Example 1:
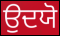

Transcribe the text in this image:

ਉਦਯੋ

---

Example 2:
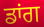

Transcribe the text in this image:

ਡਾਂਗ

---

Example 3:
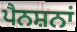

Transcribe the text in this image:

ਪੈਨਸ਼ਨਾਂ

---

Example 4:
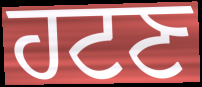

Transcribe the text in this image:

ਹਟਣ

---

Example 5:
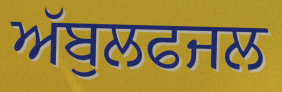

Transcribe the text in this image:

ਅੱਬੁਲਫਜਲ